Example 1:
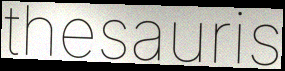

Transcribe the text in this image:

thesauris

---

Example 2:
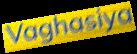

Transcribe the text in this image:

Vaghasiya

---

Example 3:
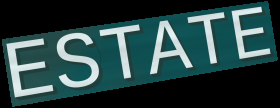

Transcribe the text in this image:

ESTATE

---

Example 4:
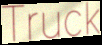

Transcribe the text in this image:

Truck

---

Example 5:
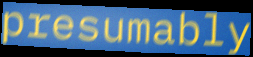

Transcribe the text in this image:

presumably